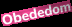
Obededom